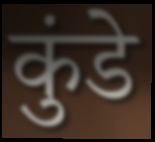
कुंडे